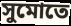
সুমোতে